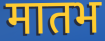
मातभ